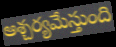
ఆశ్చర్యమేస్తుంది